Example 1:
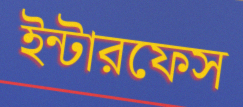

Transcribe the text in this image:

ইন্টারফেস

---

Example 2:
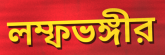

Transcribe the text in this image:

লম্ফভঙ্গীর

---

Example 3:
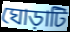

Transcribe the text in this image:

ঘোড়াটি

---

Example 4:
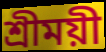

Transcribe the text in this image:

শ্রীময়ী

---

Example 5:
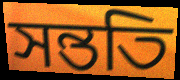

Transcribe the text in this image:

সন্ততি